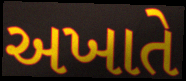
અખાતે